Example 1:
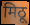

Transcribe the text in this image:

मिठू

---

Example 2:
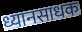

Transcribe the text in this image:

ध्यानसाधक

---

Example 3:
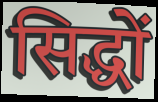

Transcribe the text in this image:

सिद्धों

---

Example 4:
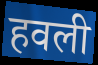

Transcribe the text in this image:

हवली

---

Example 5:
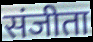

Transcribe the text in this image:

संजीता